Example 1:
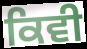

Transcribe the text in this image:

ਕਿਵੀ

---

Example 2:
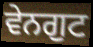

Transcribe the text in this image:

ਵੇਨਗੁਟ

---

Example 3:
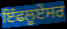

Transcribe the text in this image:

ਇੰਫਲੂਏਂਸਰ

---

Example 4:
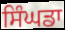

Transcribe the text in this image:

ਸਿੰਘਡਾ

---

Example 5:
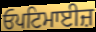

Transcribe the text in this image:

ਓਪਟਿਮਾਈਜ਼